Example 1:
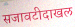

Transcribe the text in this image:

सजावटीदाखल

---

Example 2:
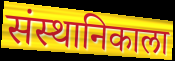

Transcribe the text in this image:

संस्थानिकाला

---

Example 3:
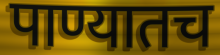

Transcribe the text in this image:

पाण्यातच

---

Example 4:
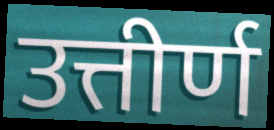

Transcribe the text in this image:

उत्तीर्ण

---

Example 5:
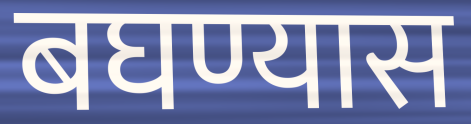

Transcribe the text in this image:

बघण्यास